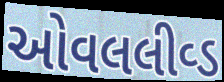
ઓવલલીવ્ડ